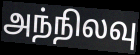
அந்நிலவு